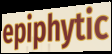
epiphytic